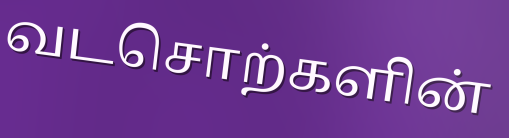
வடசொற்களின்